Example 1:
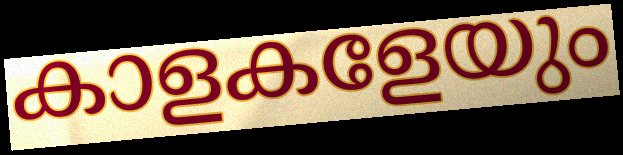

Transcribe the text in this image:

കാളകളേയും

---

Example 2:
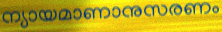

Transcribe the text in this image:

ന്യായമാണാനുസരണം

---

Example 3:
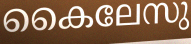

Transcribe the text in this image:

കൈലേസു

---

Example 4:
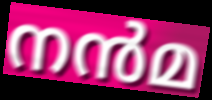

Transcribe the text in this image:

നൻമ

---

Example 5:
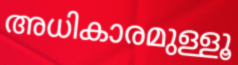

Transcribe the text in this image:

അധികാരമുള്ളൂ